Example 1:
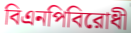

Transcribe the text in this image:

বিএনপিবিরোধী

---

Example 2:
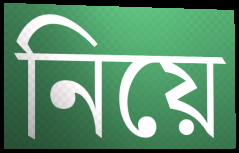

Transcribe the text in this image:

নিয়ে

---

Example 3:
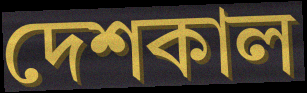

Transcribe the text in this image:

দেশকাল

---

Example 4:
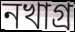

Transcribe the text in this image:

নখাগ্র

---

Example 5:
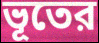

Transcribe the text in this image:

ভূতের